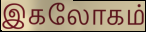
இகலோகம்